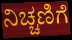
ನಿಚ್ಚಣಿಗೆ